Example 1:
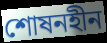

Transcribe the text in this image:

শোষনহীন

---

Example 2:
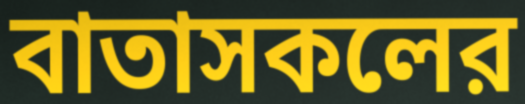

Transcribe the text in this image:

বাতাসকলের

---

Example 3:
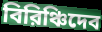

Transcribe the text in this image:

বিরিঞ্চিদেব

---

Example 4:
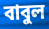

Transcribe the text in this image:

বাবুল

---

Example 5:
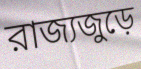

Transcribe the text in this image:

রাজ্যজুড়ে